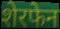
शेरफेन